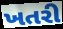
ખતરી